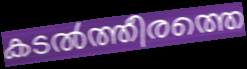
കടൽത്തീരത്തെ